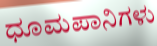
ಧೂಮಪಾನಿಗಳು